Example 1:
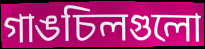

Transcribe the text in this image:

গাঙচিলগুলো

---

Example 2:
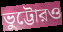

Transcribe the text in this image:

ভুট্টোরও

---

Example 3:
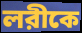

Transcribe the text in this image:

লরীকে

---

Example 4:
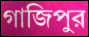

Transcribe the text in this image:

গাজিপুর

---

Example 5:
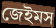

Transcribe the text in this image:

জেইমস